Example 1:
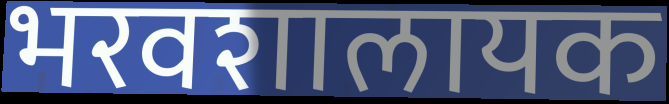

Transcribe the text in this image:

भरवशालायक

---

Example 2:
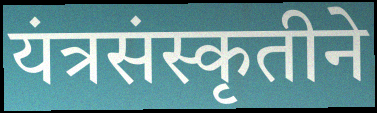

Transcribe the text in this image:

यंत्रसंस्कृतीने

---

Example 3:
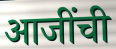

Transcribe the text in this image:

आजींची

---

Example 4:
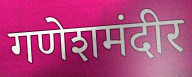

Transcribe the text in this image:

गणेशमंदीर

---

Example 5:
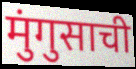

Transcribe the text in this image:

मुंगुसाची